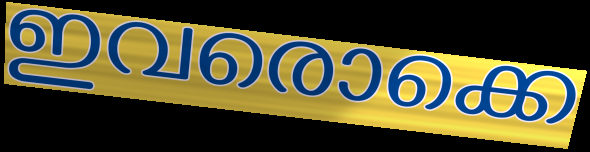
ഇവരൊക്കെ